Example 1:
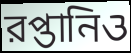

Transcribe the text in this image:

রপ্তানিও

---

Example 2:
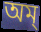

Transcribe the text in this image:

অম্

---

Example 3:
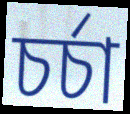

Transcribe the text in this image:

চর্চা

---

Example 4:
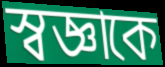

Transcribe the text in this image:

স্বজ্ঞাকে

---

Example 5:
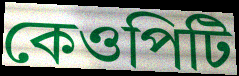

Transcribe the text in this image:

কেওপিটি